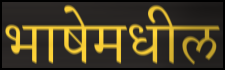
भाषेमधील